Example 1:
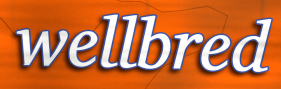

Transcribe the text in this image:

wellbred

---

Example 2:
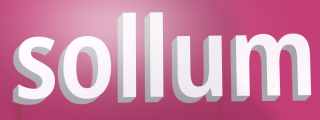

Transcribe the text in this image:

sollum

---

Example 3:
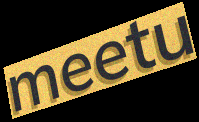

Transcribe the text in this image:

meetu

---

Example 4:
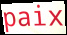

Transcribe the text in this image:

paix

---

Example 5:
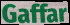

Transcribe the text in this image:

Gaffar